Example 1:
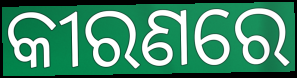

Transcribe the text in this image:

କୀରଣରେ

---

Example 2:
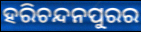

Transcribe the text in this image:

ହରିଚନ୍ଦନପୁରର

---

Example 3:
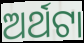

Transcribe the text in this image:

ଅର୍ଥଟା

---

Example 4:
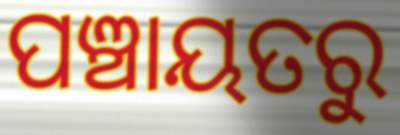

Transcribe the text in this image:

ପଞ୍ଚାୟତରୁ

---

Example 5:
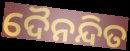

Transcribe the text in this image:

ଦୈନନ୍ଦିତ